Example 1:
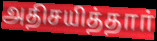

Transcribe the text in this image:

அதிசயித்தார்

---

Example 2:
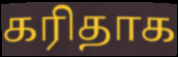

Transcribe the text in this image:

கரிதாக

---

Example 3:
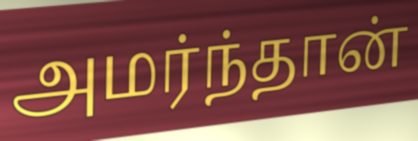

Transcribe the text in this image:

அமர்ந்தான்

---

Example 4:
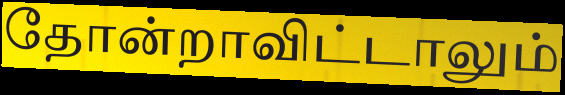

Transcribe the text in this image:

தோன்றாவிட்டாலும்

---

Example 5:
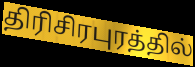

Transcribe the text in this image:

திரிசிரபுரத்தில்